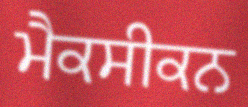
ਮੈਕਸੀਕਨ